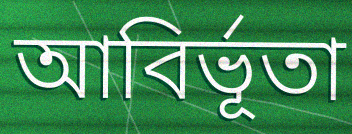
আবির্ভূতা